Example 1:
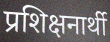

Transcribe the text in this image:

प्रशिक्षनार्थी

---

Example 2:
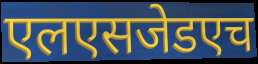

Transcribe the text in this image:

एलएसजेडएच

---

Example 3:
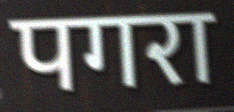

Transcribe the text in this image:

पगरा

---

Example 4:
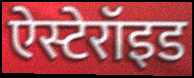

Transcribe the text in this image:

ऐस्टेरॉइड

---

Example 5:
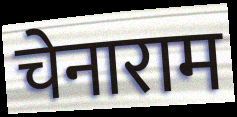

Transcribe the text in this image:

चेनाराम